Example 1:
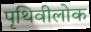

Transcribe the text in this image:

पृथिवीलोक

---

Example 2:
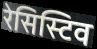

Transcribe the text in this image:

रेसिस्टिव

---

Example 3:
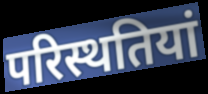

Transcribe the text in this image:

परिस्थतियां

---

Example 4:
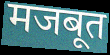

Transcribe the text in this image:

मजबूत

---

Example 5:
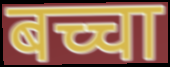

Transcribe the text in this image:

बच्चा